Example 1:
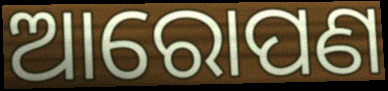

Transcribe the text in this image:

ଆରୋପଣ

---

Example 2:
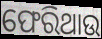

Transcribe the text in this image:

ଫେରିଥାଉ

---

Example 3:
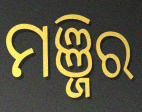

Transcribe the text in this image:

ମଞ୍ଜିର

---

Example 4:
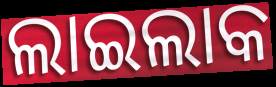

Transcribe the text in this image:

ଲାଇଲାକ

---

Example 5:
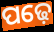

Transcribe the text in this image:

ପଢ଼େ